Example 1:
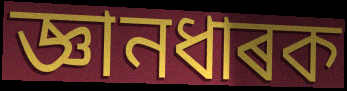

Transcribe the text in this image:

জ্ঞানধাৰক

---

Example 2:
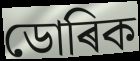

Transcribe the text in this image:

ডোৰিক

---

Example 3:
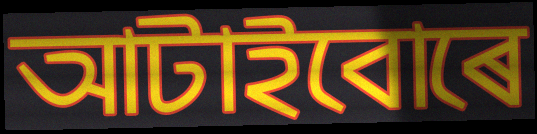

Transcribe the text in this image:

আটাইবোৰে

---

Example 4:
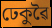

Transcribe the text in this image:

ঢেকুৱৈ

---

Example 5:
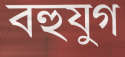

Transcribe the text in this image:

বহুযুগ